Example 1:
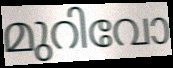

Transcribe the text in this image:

മുറിവോ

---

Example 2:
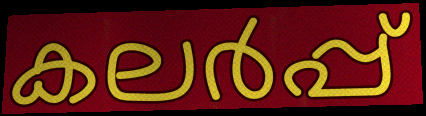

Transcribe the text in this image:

കലർപ്പ്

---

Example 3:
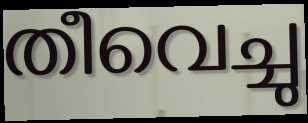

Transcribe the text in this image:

തീവെച്ചു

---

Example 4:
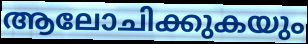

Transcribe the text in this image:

ആലോചിക്കുകയും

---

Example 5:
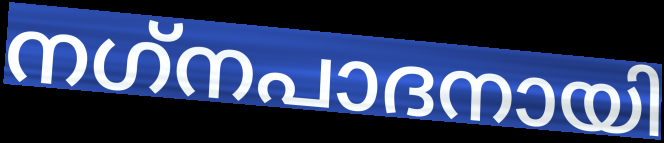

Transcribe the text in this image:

നഗ്‌നപാദനായി